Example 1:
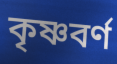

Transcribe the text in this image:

কৃষ্ণবর্ণ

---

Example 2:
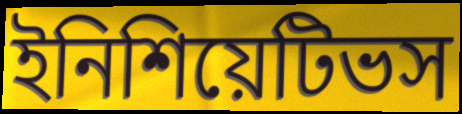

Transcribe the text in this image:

ইনিশিয়েটিভস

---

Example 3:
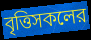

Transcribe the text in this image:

বৃত্তিসকলের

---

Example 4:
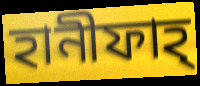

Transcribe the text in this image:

হানীফাহ্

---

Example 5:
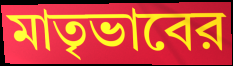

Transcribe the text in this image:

মাতৃভাবের